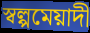
স্বল্পমেয়াদী